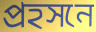
প্রহসনে